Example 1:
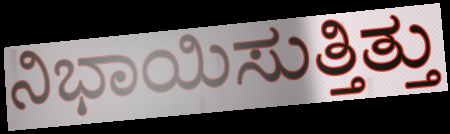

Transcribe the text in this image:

ನಿಭಾಯಿಸುತ್ತಿತ್ತು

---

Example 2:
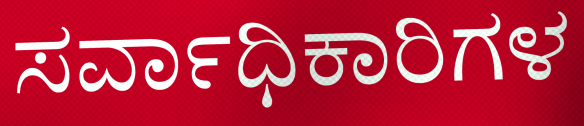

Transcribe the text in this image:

ಸರ್ವಾಧಿಕಾರಿಗಳ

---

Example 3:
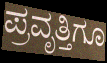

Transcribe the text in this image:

ಪ್ರವೃತ್ತಿಗೂ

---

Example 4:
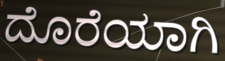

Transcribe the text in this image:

ದೊರೆಯಾಗಿ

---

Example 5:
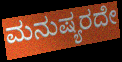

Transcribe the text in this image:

ಮನುಷ್ಯರದೇ